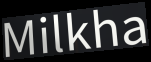
Milkha